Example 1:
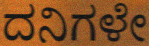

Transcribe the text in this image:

ದನಿಗಳೇ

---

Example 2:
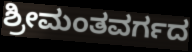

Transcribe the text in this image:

ಶ್ರೀಮಂತವರ್ಗದ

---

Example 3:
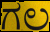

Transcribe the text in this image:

ಗಲ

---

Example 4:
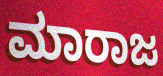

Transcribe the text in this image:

ಮಾರಾಜ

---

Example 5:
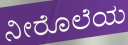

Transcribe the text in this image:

ನೀರೊಲೆಯ